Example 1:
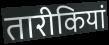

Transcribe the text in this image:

तारीकियां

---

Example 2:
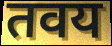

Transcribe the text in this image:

तवय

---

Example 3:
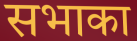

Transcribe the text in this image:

सभाका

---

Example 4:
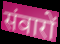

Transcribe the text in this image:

संवारों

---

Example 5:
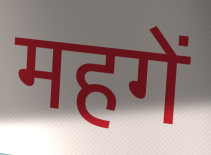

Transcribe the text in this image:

महगें